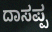
ದಾಸಪ್ಪ